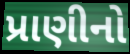
પ્રાણીનો